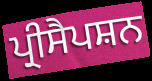
ਪ੍ਰੀਸੈਪਸ਼ਨ